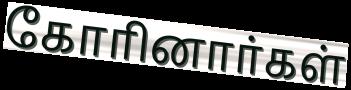
கோரினார்கள்